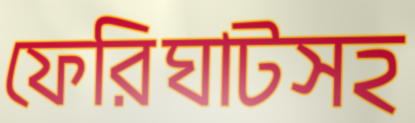
ফেরিঘাটসহ